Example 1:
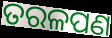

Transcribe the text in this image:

ତରଳପଣ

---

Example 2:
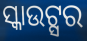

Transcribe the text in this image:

ସ୍କାଉଟ୍ସର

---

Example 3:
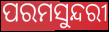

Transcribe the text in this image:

ପରମସୁନ୍ଦରୀ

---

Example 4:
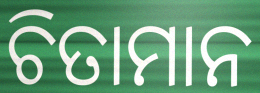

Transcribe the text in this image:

ଚିତାମାନ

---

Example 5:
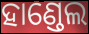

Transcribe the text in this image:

ହାଣ୍ଡେଲ